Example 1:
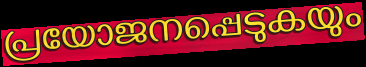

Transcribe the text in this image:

പ്രയോജനപ്പെടുകയും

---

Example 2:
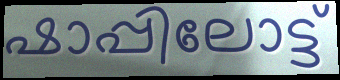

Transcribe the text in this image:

ഷാപ്പിലോട്ട്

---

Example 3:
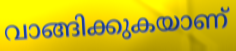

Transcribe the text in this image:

വാങ്ങിക്കുകയാണ്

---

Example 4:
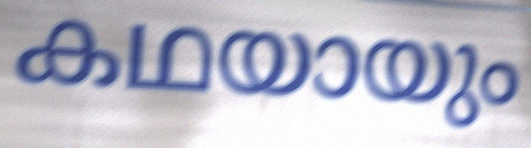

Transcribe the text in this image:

കഥയായും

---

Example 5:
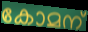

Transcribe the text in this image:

കോമന്